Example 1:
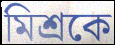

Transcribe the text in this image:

মিশ্রকে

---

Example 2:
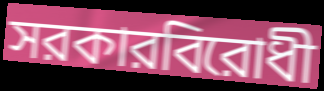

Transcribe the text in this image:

সরকারবিরোধী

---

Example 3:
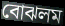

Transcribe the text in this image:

বোঝলম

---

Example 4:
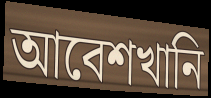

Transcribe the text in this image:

আবেশখানি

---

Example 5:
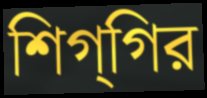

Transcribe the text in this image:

শিগ্‌গির